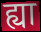
ह्या